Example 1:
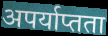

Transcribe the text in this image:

अपर्याप्‍तता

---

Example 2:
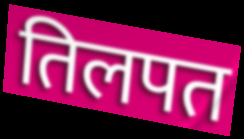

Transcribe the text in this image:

तिलपत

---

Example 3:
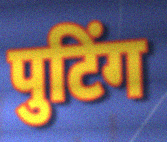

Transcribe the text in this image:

पुटिंग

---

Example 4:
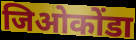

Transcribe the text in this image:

जिओकोंडा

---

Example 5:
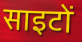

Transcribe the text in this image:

साइटों